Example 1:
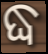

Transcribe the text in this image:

ଦ୍ଧ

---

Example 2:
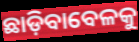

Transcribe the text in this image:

ଛାଡ଼ିବାବେଳକୁ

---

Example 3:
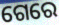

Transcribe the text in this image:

ଗେରେ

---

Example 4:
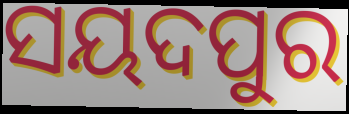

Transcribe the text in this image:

ସୟଦପୁର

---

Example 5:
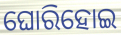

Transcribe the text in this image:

ଘୋରିହୋଇ